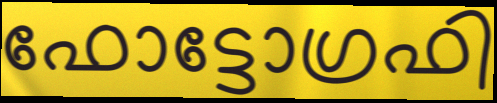
ഫോട്ടോഗ്രഫി